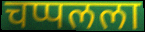
चप्पलला